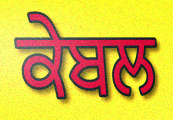
ਕੇਬਲ